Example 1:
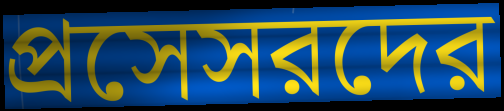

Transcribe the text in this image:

প্রসেসরদের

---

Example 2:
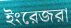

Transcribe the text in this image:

ইংরেজরা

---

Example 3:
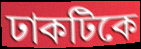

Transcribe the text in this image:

ঢাকটিকে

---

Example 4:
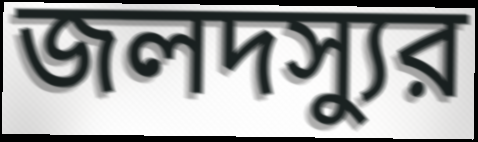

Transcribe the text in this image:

জলদস্যুর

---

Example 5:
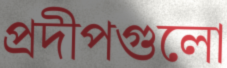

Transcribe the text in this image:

প্রদীপগুলো